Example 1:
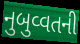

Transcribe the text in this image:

નુબુવ્વતની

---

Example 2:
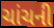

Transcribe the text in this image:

ચાંચની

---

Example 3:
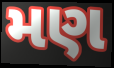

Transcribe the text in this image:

મણ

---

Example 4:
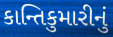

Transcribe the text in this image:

કાન્તિકુમારીનું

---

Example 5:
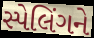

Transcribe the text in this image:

સ્પેલિંગને